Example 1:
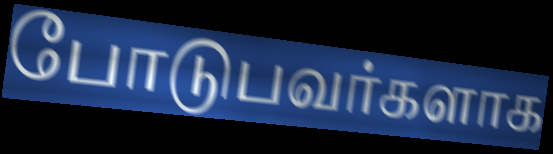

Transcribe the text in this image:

போடுபவர்களாக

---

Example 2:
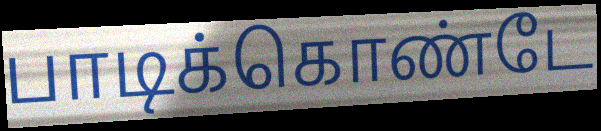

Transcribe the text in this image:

பாடிக்கொண்டே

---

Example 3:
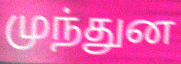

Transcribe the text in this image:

முந்துன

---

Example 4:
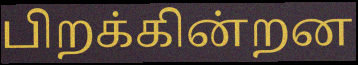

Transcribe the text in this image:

பிறக்கின்றன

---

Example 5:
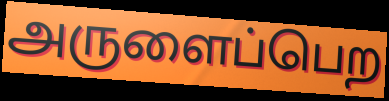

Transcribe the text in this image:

அருளைப்பெற